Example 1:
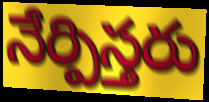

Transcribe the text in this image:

నేర్పిస్తరు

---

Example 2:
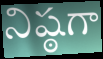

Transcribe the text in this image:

నిష్ఠగా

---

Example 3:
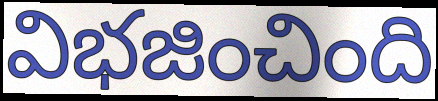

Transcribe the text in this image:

విభజించింది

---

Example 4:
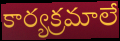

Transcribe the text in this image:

కార్యక్రమాలే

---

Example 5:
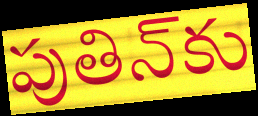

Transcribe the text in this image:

పుతిన్‌కు